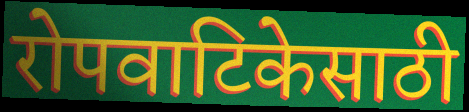
रोपवाटिकेसाठी